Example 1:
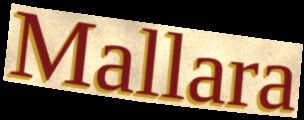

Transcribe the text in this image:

Mallara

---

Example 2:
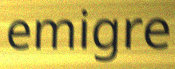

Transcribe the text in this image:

emigre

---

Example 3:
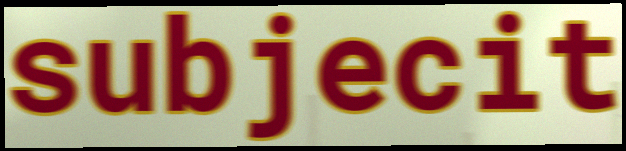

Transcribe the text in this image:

subjecit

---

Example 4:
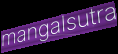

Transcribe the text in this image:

mangalsutra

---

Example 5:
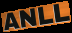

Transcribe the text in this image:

ANLL